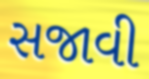
સજાવી